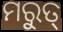
ମରୁତ୍